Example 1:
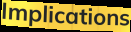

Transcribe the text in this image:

Implications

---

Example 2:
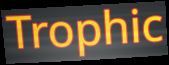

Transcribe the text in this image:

Trophic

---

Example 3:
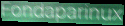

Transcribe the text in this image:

Fondaparinux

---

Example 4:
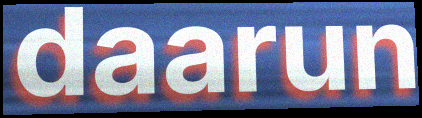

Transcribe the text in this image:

daarun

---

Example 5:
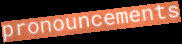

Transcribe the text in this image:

pronouncements